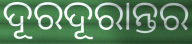
ଦୂରଦୂରାନ୍ତର